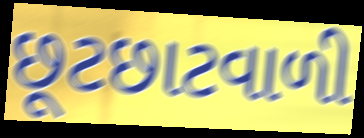
છૂટછાટવાળી